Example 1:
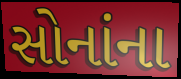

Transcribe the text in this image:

સોનાંના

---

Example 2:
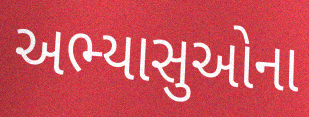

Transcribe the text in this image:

અભ્યાસુઓના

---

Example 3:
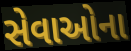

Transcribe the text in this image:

સેવાઓના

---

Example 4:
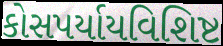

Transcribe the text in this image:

કોસપર્યાયવિશિષ્ટ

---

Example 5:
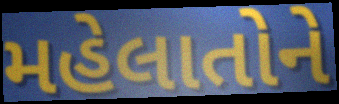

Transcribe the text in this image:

મહેલાતોને